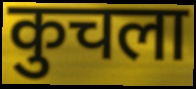
कुचला